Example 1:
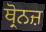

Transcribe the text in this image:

ਥ੍ਰੋਨਜ਼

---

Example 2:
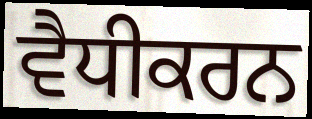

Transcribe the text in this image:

ਵੈਧੀਕਰਨ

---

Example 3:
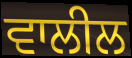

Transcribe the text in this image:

ਵਾਲੀਲ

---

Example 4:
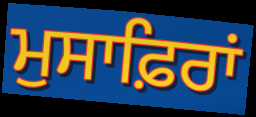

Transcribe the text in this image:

ਮੁਸਾਫ਼ਿਰਾਂ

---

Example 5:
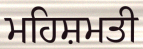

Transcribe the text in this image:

ਮਹਿਸ਼ਮਤੀ